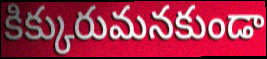
కిక్కురుమనకుండా